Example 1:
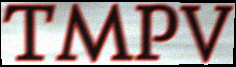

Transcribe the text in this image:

TMPV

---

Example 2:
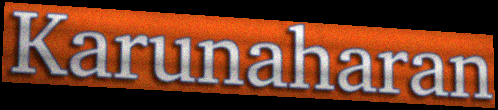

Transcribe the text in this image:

Karunaharan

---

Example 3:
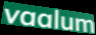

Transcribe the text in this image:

vaalum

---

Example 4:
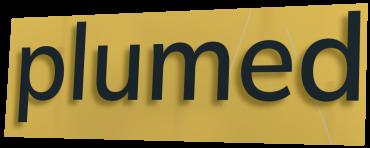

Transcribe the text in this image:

plumed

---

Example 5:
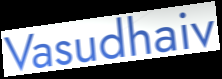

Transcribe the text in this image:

Vasudhaiv